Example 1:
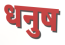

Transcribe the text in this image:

धनुष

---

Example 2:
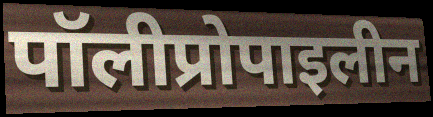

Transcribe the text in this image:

पॉलीप्रोपाइलीन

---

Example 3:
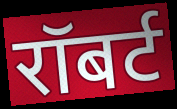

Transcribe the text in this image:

रॉबर्ट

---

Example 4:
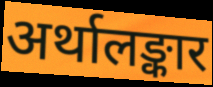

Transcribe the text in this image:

अर्थालङ्कार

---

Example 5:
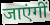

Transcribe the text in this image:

जाएंगीं